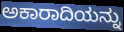
ಅಕಾರಾದಿಯನ್ನು